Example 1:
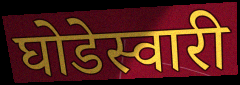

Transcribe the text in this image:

घोडेस्वारी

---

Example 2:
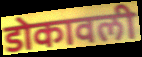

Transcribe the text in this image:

डोकावली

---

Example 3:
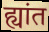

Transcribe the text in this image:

ह्यांत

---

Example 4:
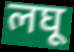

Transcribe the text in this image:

लघू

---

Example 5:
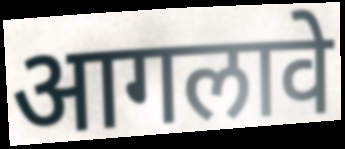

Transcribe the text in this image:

आगलावे